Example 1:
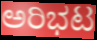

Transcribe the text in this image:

ಅರಿಭಟ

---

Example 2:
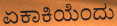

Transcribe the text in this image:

ಏಕಾಕಿಯೆಂದು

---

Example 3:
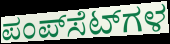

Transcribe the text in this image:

ಪಂಪ್‌ಸೆಟ್‌ಗಳ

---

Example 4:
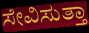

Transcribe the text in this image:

ಸೇವಿಸುತ್ತಾ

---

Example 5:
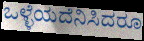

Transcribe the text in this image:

ಒಳ್ಳೆಯದೆನಿಸಿದರೂ